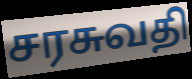
சரசுவதி